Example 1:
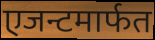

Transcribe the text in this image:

एजन्टमार्फत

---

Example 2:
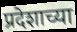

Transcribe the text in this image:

प्रदेशाच्या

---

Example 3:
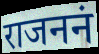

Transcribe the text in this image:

राजननं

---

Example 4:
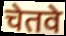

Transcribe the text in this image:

चेतवे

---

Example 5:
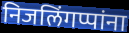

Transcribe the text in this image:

निजलिंगप्पांना